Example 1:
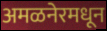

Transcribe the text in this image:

अमळनेरमधून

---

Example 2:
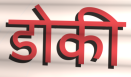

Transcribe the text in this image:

डोकी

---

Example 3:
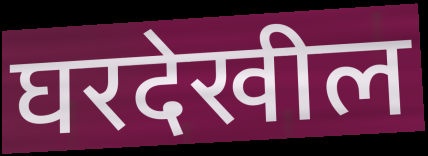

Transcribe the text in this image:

घरदेखील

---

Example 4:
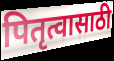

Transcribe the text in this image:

पितृत्वासाठी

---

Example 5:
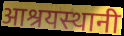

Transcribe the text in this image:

आश्रयस्थानी